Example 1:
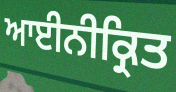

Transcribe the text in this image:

ਆਈਨੀਕ੍ਰਿਤ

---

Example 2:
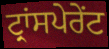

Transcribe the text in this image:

ਟ੍ਰਾਂਸਪੇਰੇਂਟ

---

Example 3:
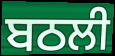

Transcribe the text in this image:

ਬਠਲੀ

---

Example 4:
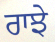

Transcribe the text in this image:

ਰਾਝੇ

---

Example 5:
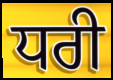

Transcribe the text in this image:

ਧਰੀ